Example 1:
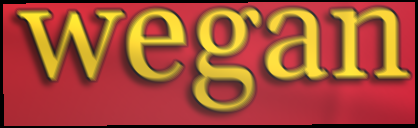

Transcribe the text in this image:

wegan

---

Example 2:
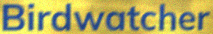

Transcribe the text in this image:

Birdwatcher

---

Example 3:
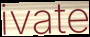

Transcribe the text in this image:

ivate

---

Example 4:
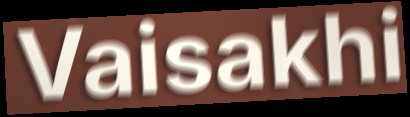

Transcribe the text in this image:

Vaisakhi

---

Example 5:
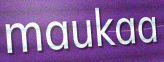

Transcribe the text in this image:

maukaa